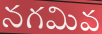
నగమివ